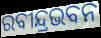
ରବୀନ୍ଦ୍ରଭବନ